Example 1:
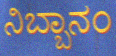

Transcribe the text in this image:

ನಿಬ್ಬಾನಂ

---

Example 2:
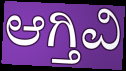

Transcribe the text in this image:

ಆಗ್ತಿವಿ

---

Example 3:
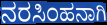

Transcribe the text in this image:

ನರಸಿಂಹನಾಗಿ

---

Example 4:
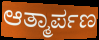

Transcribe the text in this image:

ಆತ್ಮಾರ್ಪಣ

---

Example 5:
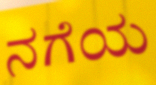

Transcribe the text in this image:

ನಗೆಯ